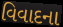
વિવાદના